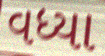
વધ્યા